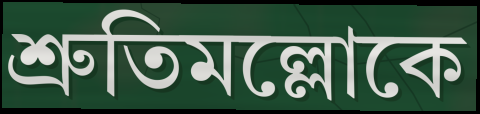
শ্রুতিমল্লোকে